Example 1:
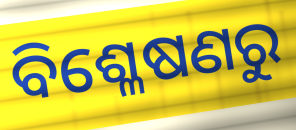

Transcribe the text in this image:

ବିଶ୍ଳେଷଣରୁ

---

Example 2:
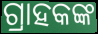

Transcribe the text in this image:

ଗ୍ରାହକଙ୍କ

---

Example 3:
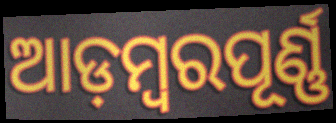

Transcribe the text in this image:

ଆଡ଼ମ୍ବରପୂର୍ଣ୍ଣ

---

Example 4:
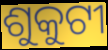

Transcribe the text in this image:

ଶୁକୁଟୀ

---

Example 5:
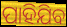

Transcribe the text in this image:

ପାହିଯିବ